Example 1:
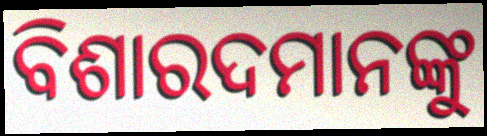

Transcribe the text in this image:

ବିଶାରଦମାନଙ୍କୁ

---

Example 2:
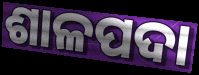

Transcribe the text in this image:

ଶାଳପଦା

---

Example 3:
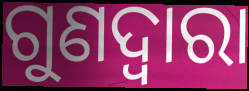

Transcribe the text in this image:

ଗୁଣଦ୍ଵାରା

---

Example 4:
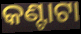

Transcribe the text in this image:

କଣ୍ଟାଟା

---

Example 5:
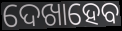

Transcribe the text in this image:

ଦେଖାହେବ